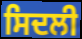
ਸਿਦਲੀ